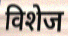
विशेज